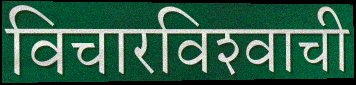
विचारविश्वाची